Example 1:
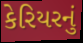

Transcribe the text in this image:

કેરિયરનું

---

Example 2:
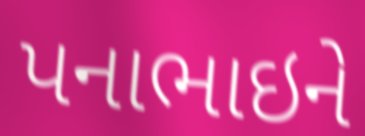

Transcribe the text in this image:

પનાભાઇને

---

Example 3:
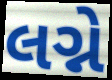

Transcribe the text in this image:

લગ્ને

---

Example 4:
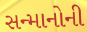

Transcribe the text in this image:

સન્માનોની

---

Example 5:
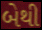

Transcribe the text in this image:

બેથી